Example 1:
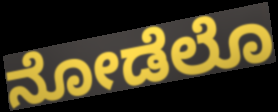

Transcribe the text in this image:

ನೋಡೆಲೊ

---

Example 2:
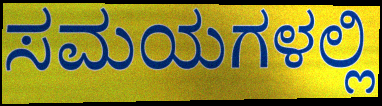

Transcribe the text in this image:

ಸಮಯಗಳಲ್ಲಿ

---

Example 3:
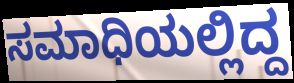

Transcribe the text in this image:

ಸಮಾಧಿಯಲ್ಲಿದ್ದ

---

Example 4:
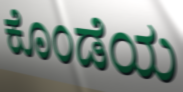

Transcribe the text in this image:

ಕೊಂಡೆಯ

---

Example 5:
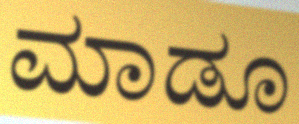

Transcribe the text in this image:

ಮಾಡೂ